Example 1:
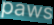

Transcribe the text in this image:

paws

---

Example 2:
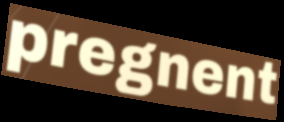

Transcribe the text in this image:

pregnent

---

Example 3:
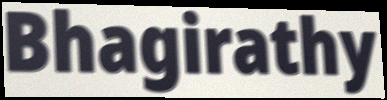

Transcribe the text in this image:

Bhagirathy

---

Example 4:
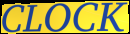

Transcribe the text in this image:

CLOCK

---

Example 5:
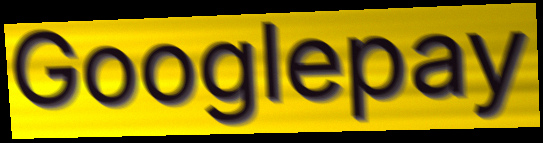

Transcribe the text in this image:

Googlepay